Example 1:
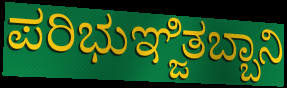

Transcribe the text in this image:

ಪರಿಭುಞ್ಜಿತಬ್ಬಾನಿ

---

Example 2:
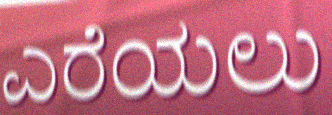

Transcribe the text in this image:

ಎರೆಯಲು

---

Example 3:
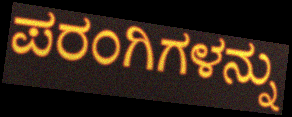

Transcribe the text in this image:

ಪರಂಗಿಗಳನ್ನು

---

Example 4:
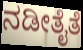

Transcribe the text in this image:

ನಡೀತೈತೆ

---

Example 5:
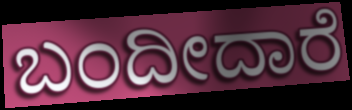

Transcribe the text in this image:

ಬಂದೀದಾರೆ